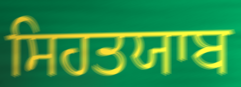
ਸਿਹਤਯਾਬ